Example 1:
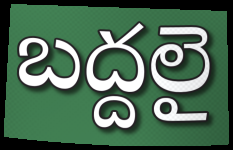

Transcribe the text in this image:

బద్దలై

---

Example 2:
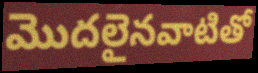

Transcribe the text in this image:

మొదలైనవాటితో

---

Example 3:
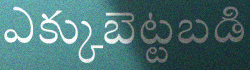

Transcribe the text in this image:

ఎక్కుబెట్టబడి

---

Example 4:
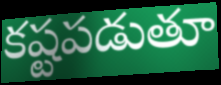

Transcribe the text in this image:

కష్టపడుతూ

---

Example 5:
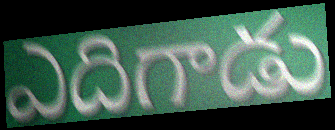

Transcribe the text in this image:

ఎదిగాడు